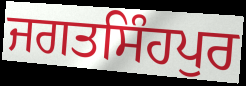
ਜਗਤਸਿੰਹਪੁਰ